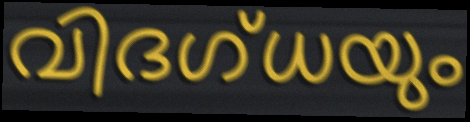
വിദഗ്ധയും